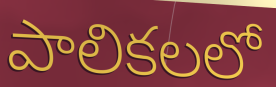
పాలికలలో